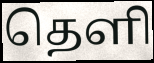
தெளி